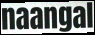
naangal